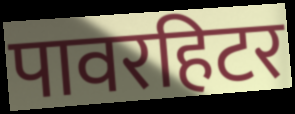
पावरहिटर